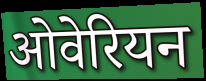
ओवेरियन